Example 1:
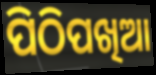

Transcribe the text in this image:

ପିଠିପଖିଆ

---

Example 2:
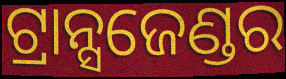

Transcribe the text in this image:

ଟ୍ରାନ୍ସଜେଣ୍ଡର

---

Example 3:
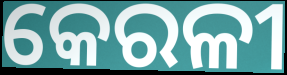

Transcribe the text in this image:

କେରଳୀ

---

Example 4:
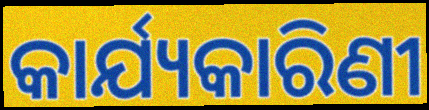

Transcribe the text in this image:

କାର୍ଯ୍ୟକାରିଣୀ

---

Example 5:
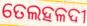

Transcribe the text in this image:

ତେଲହଳଦୀ